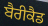
ਬੈਰੀਕੈਡ